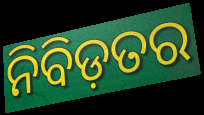
ନିବିଡ଼ତର